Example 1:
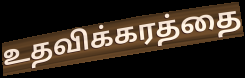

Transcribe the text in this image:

உதவிக்கரத்தை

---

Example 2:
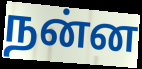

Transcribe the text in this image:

நன்ன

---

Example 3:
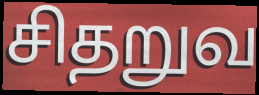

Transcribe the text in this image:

சிதறுவ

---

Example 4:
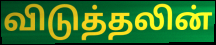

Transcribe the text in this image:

விடுத்தலின்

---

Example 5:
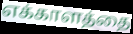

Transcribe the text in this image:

எக்காளத்தை